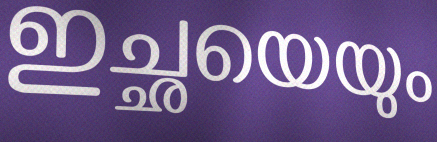
ഇച്ഛയെയും